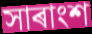
সাৰাংশ